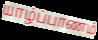
யாழ்ப்பாணம்